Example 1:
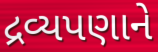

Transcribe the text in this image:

દ્રવ્યપણાને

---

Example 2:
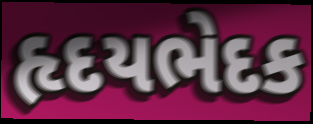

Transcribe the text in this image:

હૃદયભેદક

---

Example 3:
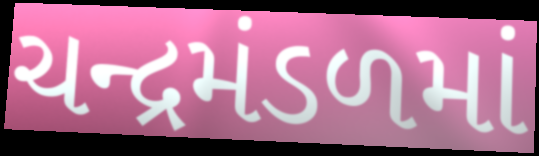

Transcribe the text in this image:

ચન્દ્રમંડળમાં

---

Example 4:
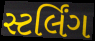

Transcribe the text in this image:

સ્ટર્લિંગ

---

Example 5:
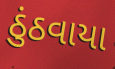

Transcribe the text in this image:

ઠુંઠવાયા